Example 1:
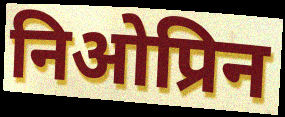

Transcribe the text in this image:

निओप्रिन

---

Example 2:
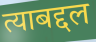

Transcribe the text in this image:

त्याबद्दल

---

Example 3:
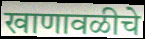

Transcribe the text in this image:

खाणावळीचे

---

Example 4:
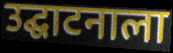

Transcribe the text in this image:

उद्घाटनाला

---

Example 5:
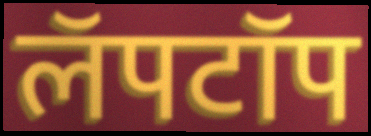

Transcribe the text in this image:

लॅपटॉप